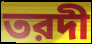
তরদী